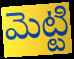
మెట్టి